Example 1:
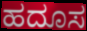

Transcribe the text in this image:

ಹದೂಸ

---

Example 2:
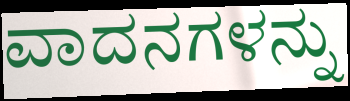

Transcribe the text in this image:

ವಾದನಗಳನ್ನು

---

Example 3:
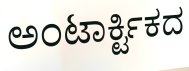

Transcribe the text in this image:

ಅಂಟಾರ್ಕ್ಟಿಕದ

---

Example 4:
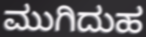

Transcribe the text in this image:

ಮುಗಿದುಹ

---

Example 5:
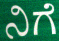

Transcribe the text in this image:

ನಿಗೆ